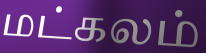
மட்கலம்